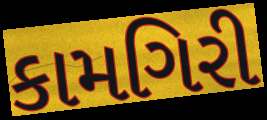
કામગિરી